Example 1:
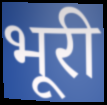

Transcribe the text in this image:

भूरी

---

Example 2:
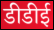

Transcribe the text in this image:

डीडीई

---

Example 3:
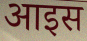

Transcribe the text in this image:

आइस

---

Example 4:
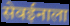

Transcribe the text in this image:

सेवईनाला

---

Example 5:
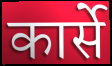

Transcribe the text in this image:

कार्से